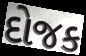
દોજક